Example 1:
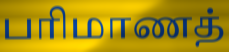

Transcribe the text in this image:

பரிமாணத்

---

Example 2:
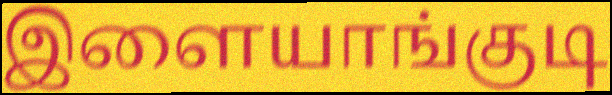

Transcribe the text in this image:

இளையாங்குடி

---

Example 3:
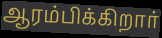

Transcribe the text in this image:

ஆரம்பிக்கிறார்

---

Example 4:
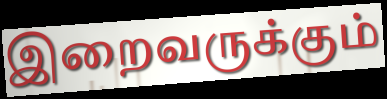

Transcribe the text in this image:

இறைவருக்கும்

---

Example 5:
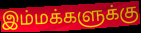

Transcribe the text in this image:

இம்மக்களுக்கு